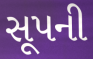
સૂપની